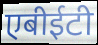
एबीईटी